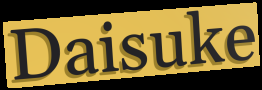
Daisuke